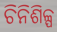
ଚିନିଶିଳ୍ପ